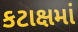
કટાક્ષમાં